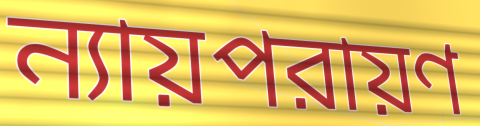
ন্যায়পরায়ণ